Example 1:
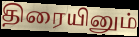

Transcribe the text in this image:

திரையினும்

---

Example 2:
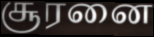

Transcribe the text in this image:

சூரனை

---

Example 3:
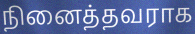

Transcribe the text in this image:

நினைத்தவராக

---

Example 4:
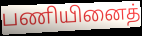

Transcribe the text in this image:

பணியினைத்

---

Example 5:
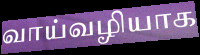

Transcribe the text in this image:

வாய்வழியாக